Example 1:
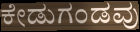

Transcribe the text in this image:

ಕೇಡುಗಂಡವು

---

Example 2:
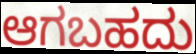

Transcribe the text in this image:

ಆಗಬಹದು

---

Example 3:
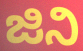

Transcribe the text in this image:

ಜಿನಿ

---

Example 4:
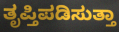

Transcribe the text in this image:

ತೃಪ್ತಿಪಡಿಸುತ್ತಾ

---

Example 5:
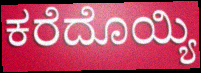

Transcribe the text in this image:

ಕರೆದೊಯ್ಯಿ